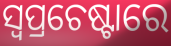
ସ୍ଵପ୍ରଚେଷ୍ଟାରେ